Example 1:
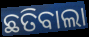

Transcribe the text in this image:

ଛତିବାଲା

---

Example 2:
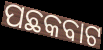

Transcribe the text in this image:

ପଛକବାଟ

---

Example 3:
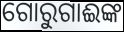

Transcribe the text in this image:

ଗୋରୁଗାଈଙ୍କ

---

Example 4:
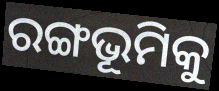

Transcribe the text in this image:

ରଙ୍ଗଭୂମିକୁ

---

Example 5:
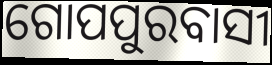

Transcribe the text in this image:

ଗୋପପୁରବାସୀ